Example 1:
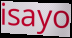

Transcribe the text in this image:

isayo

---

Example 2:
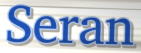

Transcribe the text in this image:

Seran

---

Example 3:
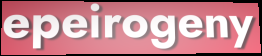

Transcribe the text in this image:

epeirogeny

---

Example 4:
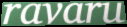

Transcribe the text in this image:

ravaru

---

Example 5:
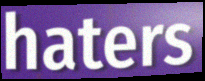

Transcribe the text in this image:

haters